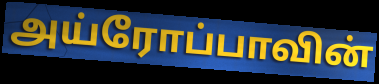
அய்ரோப்பாவின்